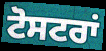
ਟੋਸਟਰਾਂ